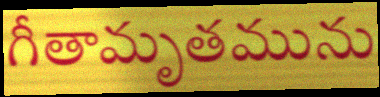
గీతామృతమును